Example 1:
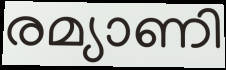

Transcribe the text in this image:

രമ്യാണി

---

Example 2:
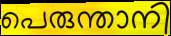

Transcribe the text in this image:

പെരുന്താനി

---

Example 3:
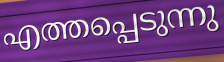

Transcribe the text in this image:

എത്തപ്പെടുന്നു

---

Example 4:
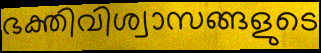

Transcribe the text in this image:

ഭക്തിവിശ്വാസങ്ങളുടെ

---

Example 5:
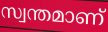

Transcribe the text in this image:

സ്വന്തമാണ്